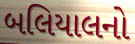
બલિયાલનો